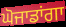
ਘੋਜਾਡਾਂਗਾ